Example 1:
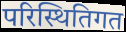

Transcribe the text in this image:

परिस्थितिगत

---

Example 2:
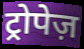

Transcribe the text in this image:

ट्रोपेज़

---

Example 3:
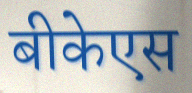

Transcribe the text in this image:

बीकेएस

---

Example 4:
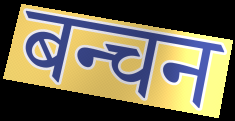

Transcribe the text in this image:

बन्चन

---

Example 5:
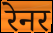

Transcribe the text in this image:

रेनर